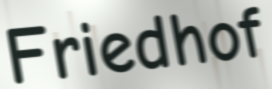
Friedhof